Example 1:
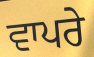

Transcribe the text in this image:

ਵਾਪਰੇ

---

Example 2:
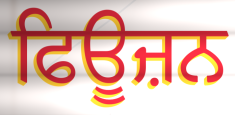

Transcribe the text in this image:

ਫਿਊਜ਼ਨ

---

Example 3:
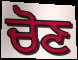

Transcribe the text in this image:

ਚੋਣ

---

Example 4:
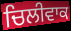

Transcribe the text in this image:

ਚਿਲੀਵਾਕ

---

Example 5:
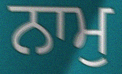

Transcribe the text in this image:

ਨਾਮੁ